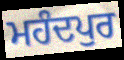
ਮਹੰਦਪੁਰ